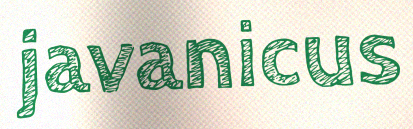
javanicus